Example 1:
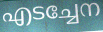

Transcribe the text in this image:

എടച്ചേന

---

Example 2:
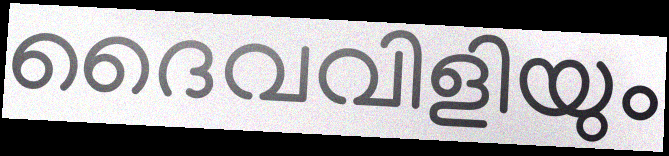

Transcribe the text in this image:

ദൈവവിളിയും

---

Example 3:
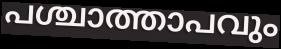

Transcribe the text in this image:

പശ്ചാത്താപവും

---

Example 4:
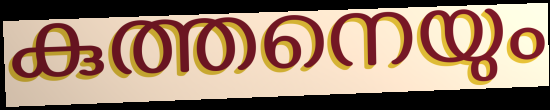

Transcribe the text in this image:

കുത്തനെയും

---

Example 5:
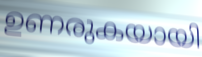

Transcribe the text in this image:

ഉണരുകയായി